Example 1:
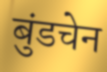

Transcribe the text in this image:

बुंडचेन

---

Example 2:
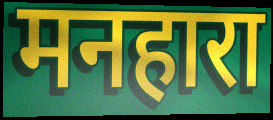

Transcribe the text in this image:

मनहारा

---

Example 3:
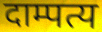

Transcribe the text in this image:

दाम्पत्य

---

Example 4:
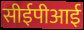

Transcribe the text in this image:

सीईपीआई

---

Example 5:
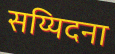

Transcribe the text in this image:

सय्यिदना